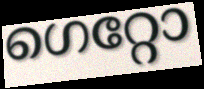
ഗെറ്റോ